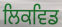
ਲਿਕਵਿਡ